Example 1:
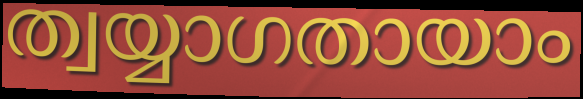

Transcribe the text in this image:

ത്വയ്യാഗതായാം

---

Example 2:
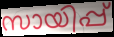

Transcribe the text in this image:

സായിപ്പ്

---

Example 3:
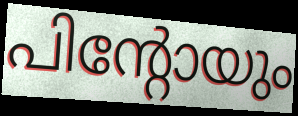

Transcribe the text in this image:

പിന്റോയും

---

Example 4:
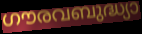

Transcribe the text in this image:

ഗൗരവബുദ്ധ്യാ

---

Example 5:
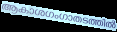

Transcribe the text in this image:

ആകാശഗംഗാതടത്തിൽ